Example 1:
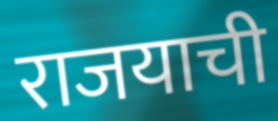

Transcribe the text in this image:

राजयाची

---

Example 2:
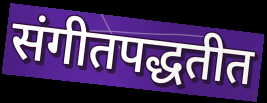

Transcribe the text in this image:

संगीतपद्धतीत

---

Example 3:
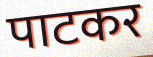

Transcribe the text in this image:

पाटकर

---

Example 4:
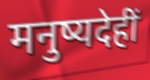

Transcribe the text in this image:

मनुष्यदेहीं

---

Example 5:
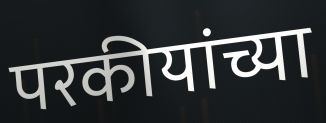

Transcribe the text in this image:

परकीयांच्या